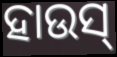
ହାଉସ୍